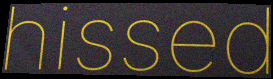
hissed